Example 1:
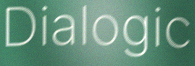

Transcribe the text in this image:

Dialogic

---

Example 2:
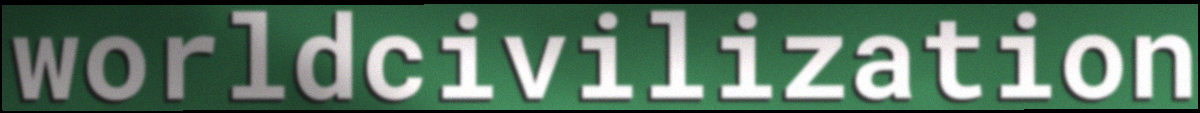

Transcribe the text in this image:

worldcivilization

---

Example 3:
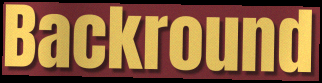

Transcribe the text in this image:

Backround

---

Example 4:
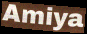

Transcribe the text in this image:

Amiya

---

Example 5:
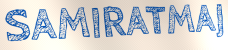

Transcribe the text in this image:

SAMIRATMAJ